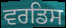
ਵਰਡਿਸ